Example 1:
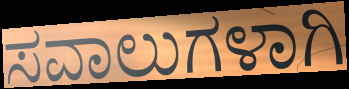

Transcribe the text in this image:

ಸವಾಲುಗಳಾಗಿ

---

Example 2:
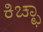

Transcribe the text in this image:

ಕಿಚ್ಛಾ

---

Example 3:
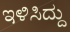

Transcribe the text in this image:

ಇಳಿಸಿದ್ದು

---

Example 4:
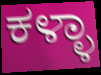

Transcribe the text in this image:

ಕಳ್ಳಾ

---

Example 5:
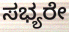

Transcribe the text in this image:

ಸಭ್ಯರೇ